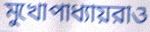
মুখোপাধ্যায়রাও